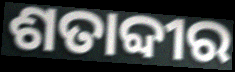
ଶତାବ୍ଦୀର